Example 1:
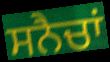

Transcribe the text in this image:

ਸਨੈਚਾਂ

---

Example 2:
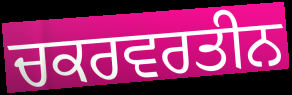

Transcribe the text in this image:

ਚਕਰਵਰਤੀਨ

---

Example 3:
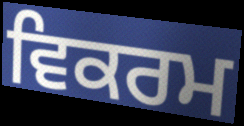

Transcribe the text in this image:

ਵਿਕਰਮ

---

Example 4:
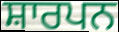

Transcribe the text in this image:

ਸ਼ਾਰਪਨ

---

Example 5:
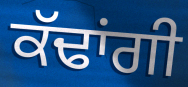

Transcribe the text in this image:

ਕੱਢਾਂਗੀ